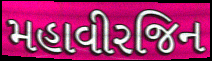
મહાવીરજિન